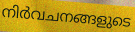
നിർവചനങ്ങളുടെ